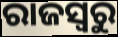
ରାଜସ୍ୱରୁ